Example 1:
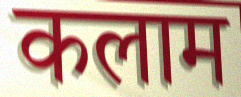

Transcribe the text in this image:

कलाम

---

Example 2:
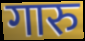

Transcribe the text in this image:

गारु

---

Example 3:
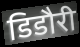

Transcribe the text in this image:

डिडौरी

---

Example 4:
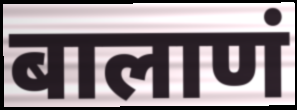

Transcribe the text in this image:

बालाणं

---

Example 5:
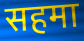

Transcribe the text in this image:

सहमा